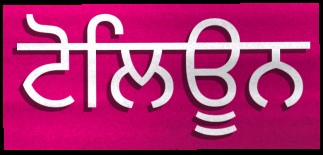
ਟੋਲਿਊਨ